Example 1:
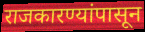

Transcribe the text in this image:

राजकारण्यांपासून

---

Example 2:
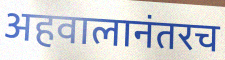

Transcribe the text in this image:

अहवालानंतरच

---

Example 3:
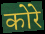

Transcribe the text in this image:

कोरे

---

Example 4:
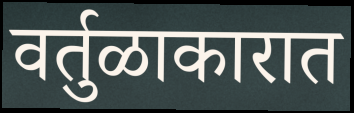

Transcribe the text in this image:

वर्तुळाकारात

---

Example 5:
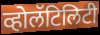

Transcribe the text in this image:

व्होलॅटिलिटी